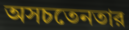
অসচতেনতার